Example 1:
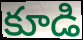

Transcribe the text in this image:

కూడి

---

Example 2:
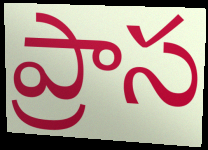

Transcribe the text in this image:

ప్రాస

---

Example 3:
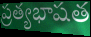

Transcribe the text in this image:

ప్రత్యభాషత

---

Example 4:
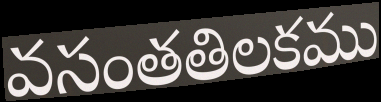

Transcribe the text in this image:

వసంతతిలకము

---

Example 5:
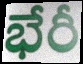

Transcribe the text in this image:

భేరీ